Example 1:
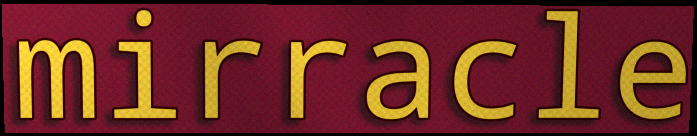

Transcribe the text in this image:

mirracle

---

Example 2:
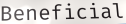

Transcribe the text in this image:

Beneficial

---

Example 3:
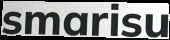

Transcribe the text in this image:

smarisu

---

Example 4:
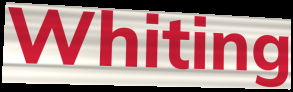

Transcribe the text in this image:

Whiting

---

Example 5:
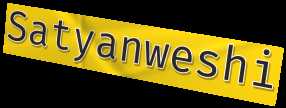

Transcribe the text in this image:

Satyanweshi